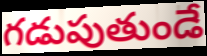
గడుపుతుండే